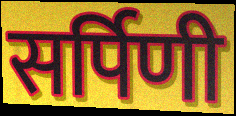
सर्पिणी